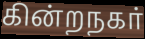
கின்றநகர்